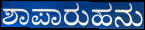
ಶಾಪಾರುಹನು